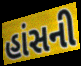
હાંસની